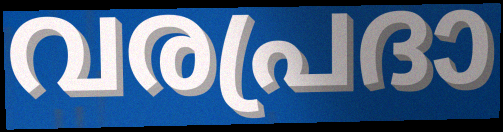
വരപ്രദാ